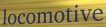
locomotive